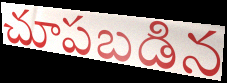
చూపబడిన